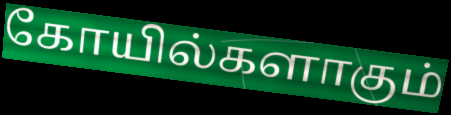
கோயில்களாகும்